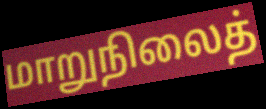
மாறுநிலைத்